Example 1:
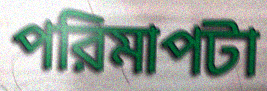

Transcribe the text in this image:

পরিমাপটা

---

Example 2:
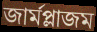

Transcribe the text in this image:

জার্মপ্লাজম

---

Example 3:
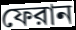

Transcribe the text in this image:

ফেরান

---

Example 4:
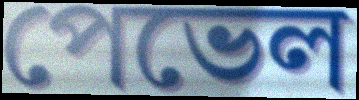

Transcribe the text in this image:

পেভেল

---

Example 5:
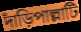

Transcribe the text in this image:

দাঁড়িপাল্লাটি